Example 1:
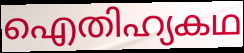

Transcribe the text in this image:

ഐതിഹ്യകഥ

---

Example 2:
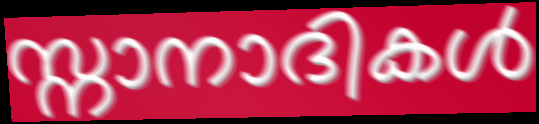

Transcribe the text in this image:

സ്നാനാദികൾ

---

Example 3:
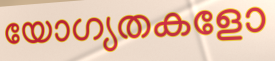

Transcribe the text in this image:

യോഗ്യതകളോ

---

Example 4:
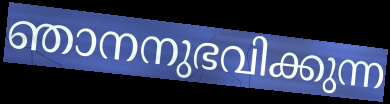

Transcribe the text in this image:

ഞാനനുഭവിക്കുന്ന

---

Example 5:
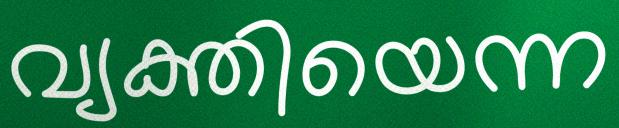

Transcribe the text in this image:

വ്യക്തിയെന്ന